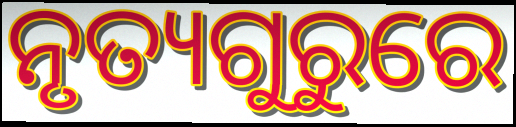
ନୃତ୍ୟଗୁରୁରେ